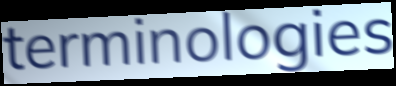
terminologies